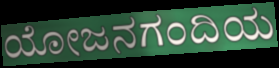
ಯೋಜನಗಂದಿಯ